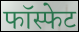
फॉस्फेट